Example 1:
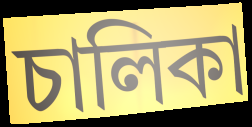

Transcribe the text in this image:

চালিকা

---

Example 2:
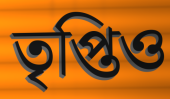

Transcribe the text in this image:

তৃপ্তিও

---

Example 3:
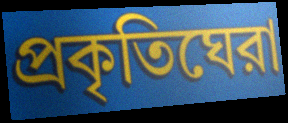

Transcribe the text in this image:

প্রকৃতিঘেরা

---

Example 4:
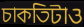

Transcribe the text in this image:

চাকতিটাও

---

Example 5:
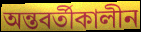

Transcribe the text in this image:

অন্তবর্তীকালীন